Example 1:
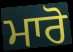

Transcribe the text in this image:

ਮਾਰੋ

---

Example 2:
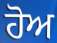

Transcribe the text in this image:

ਹੋਅ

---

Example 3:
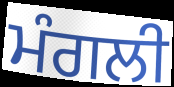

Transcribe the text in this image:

ਮੰਗਲੀ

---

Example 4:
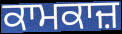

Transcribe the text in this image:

ਕਾਮਕਾਜ਼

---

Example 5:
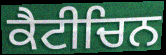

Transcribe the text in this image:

ਕੈਟੀਚਿਨ